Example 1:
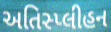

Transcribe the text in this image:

અતિસ્પ્લીહન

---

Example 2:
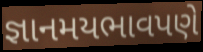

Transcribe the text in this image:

જ્ઞાનમયભાવપણે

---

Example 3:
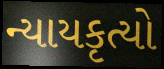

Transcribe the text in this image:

ન્યાયકૃત્યો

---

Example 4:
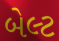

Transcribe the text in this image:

બેલ્ટ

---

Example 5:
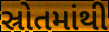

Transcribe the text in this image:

સ્રોતમાંથી